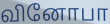
வினோபா